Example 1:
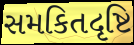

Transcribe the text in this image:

સમકિતદૃષ્ટિ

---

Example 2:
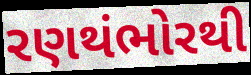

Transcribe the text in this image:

રણથંભોરથી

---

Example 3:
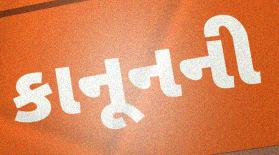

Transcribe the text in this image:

કાનૂનની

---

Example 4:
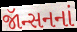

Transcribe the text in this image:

જૉન્સનનાં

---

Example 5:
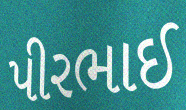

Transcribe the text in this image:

પીરભાઈ